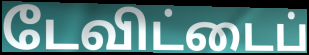
டேவிட்டைப்